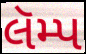
લૅમ્પ